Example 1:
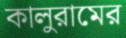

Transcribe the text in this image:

কালুরামের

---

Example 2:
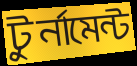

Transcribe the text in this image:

টুর্নামেন্ট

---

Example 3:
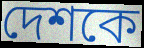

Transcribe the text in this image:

দেশকে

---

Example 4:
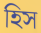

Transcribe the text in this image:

হিস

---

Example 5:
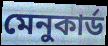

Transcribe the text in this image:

মেনুকার্ড